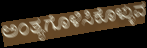
ಅಂತ್ಯಗೊಳಿಸಿಕೊಳ್ಳುವ